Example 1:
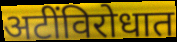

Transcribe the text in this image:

अटींविरोधात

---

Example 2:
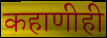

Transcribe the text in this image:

कहाणीही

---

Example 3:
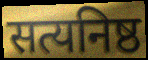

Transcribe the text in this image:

सत्यनिष्ठ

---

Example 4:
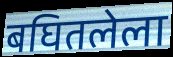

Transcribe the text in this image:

बघितलेला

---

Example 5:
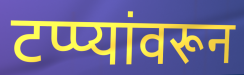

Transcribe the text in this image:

टप्प्यांवरून